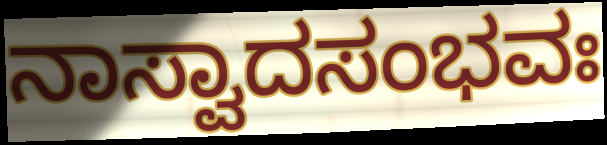
ನಾಸ್ವಾದಸಂಭವಃ